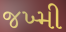
જખ્મી